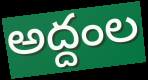
అద్దంల